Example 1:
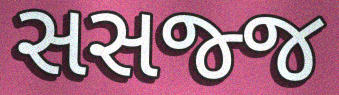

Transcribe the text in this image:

સસજ્જ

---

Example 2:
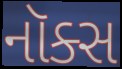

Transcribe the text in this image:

નૉક્સ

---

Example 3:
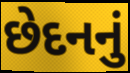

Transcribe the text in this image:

છેદનનું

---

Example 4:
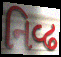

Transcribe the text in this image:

નિવ્ઢ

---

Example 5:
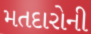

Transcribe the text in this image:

મતદારોની